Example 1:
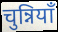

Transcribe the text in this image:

चुन्नियाँ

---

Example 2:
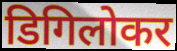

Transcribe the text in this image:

डिगिलोकर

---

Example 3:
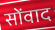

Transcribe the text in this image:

सोंवाद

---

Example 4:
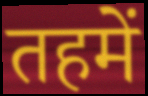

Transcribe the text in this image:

तहमें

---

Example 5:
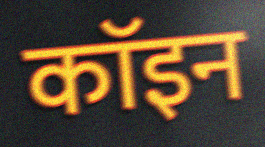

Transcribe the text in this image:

कॉइन